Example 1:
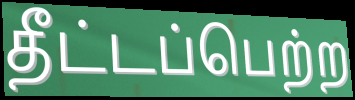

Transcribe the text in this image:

தீட்டப்பெற்ற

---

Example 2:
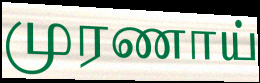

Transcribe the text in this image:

முரணாய்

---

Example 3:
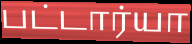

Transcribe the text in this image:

பட்டார்யா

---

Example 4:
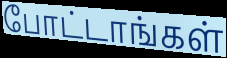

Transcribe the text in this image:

போட்டாங்கள்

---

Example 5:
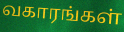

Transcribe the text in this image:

வகாரங்கள்